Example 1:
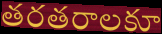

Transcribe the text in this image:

తరతరాలకూ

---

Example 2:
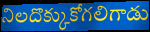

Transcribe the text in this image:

నిలదొక్కుకోగలిగాడు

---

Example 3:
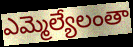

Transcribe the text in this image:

ఎమ్మెల్యేలంతా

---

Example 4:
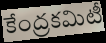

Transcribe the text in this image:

కేంద్రకమిటీ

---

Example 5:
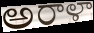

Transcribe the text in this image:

అరాళా